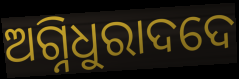
ଅଗ୍ନିଧୁରାଦଦେ